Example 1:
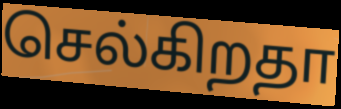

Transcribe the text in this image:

செல்கிறதா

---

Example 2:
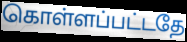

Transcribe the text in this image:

கொள்ளப்பட்டதே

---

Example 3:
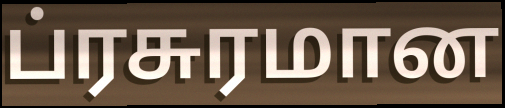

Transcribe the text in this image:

ப்ரசுரமான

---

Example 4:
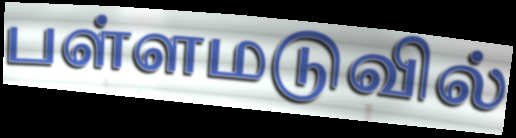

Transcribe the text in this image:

பள்ளமடுவில்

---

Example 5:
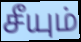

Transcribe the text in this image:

சீயும்